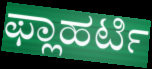
ಫ್ಲಾಹರ್ಟಿ